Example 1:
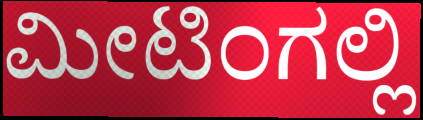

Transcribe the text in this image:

ಮೀಟಿಂಗಲ್ಲಿ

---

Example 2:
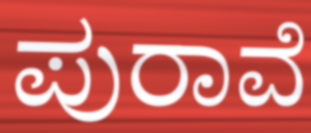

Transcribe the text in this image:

ಪುರಾವೆ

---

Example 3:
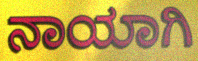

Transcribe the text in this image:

ನಾಯಾಗಿ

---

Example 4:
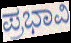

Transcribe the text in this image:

ಪ್ರಭಾವಿ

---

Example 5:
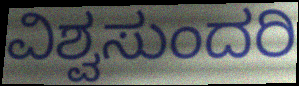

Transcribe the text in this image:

ವಿಶ್ವಸುಂದರಿ